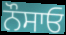
ਨੌਸਾਓ